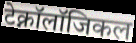
टेक्नॉलॉजिकल